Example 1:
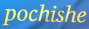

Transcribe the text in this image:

pochishe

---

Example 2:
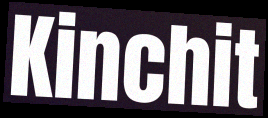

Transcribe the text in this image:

Kinchit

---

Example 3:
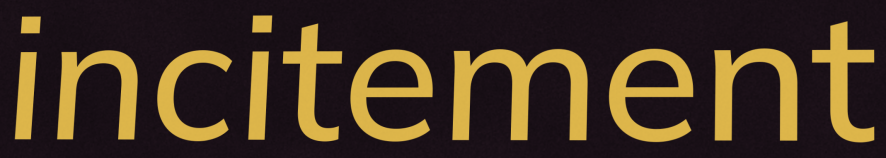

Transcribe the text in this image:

incitement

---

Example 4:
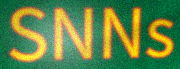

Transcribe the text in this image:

SNNs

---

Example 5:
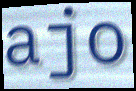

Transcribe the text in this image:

ajo